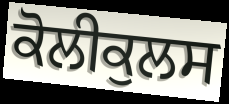
ਕੋਲੀਕੁਲਸ